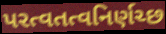
પરત્વતત્વનિર્ણચ્છ